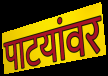
पाटयांवर